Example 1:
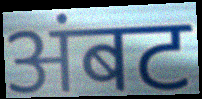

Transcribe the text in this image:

अंबट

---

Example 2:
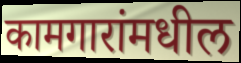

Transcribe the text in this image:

कामगारांमधील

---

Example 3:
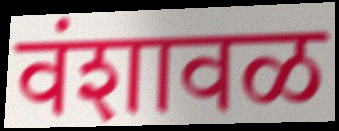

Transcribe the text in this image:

वंशावळ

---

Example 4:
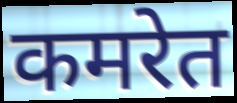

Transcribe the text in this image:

कमरेत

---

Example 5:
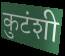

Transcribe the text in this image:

कुटंशी